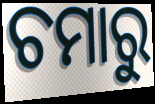
ଚମାରୁ